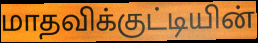
மாதவிக்குட்டியின்